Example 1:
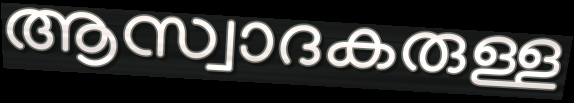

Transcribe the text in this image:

ആസ്വാദകരുള്ള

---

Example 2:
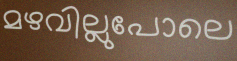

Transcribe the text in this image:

മഴവില്ലുപോലെ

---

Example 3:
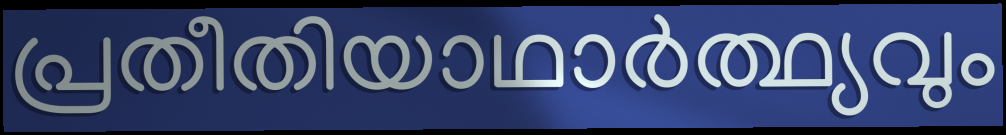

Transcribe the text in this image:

പ്രതീതിയാഥാർത്ഥ്യവും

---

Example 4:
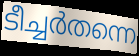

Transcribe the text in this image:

ടീച്ചർതന്നെ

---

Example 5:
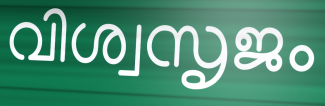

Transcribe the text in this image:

വിശ്വസൃജം